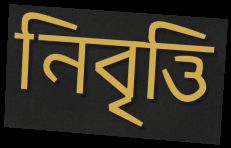
নিবৃত্তি